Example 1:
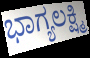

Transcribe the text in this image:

ಭಾಗ್ಯಲಕ್ಷ್ಮಿ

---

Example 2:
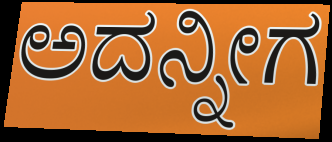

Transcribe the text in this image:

ಅದನ್ನೀಗ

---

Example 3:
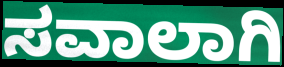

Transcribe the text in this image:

ಸವಾಲಾಗಿ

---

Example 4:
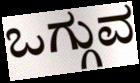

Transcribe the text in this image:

ಒಗ್ಗುವ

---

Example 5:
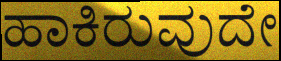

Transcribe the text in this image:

ಹಾಕಿರುವುದೇ